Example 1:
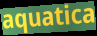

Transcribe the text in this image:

aquatica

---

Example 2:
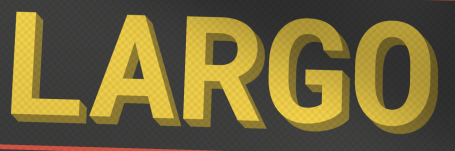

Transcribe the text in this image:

LARGO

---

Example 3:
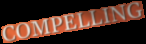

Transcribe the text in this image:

COMPELLING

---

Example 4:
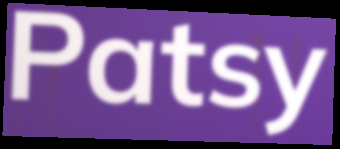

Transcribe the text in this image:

Patsy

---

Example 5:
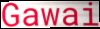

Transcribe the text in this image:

Gawai